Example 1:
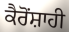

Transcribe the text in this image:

ਕੈਰੋਂਸ਼ਾਹੀ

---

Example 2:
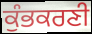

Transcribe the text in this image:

ਕੁੰਭਕਰਣੀ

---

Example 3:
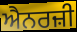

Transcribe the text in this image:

ਐਨਰਜ਼ੀ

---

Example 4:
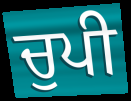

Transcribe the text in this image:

ਚੁਪੀ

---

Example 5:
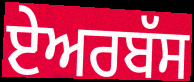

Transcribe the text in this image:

ਏਅਰਬੱਸ